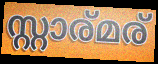
സ്റ്റാര്മര്